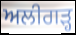
ਅਲੀਗੜ੍ਹ